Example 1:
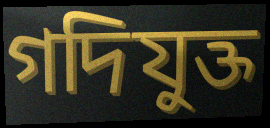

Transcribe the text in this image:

গদিযুক্ত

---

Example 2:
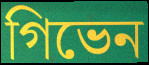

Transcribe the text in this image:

গিভেন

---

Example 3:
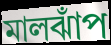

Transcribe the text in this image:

মালঝাঁপ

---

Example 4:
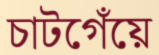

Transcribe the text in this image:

চাটগেঁয়ে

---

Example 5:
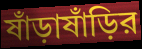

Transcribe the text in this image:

ষাঁড়াষাঁড়ির